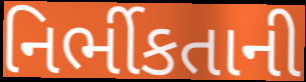
નિર્ભીકતાની